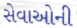
સેવાઓની